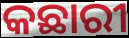
କଛାରୀ